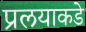
प्रलयाकडे